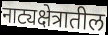
नाट्यक्षेत्रातील